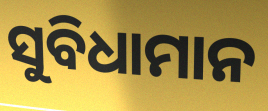
ସୁବିଧାମାନ